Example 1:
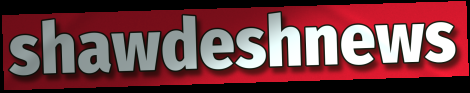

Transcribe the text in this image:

shawdeshnews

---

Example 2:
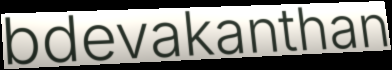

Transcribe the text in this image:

bdevakanthan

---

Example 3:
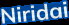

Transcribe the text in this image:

Niridai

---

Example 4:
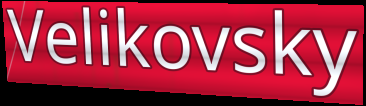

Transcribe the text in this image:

Velikovsky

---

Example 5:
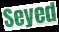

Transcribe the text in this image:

Seyed